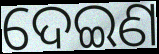
ଦେଇଣ